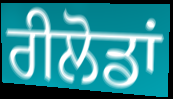
ਰੀਲੋਡਾਂ